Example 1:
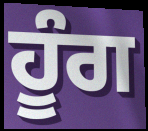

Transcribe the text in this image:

ਹੂੰਗ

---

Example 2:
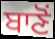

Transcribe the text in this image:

ਬਾਣੋਂ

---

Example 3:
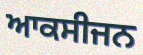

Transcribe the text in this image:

ਆਕਸੀਜਨ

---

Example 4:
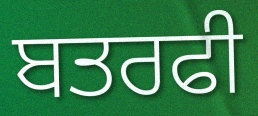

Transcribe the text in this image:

ਬਤਰਫੀ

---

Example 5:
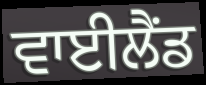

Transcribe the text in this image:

ਵਾਈਲੈਂਡ